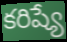
కరిష్యే